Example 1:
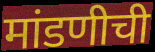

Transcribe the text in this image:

मांडणीची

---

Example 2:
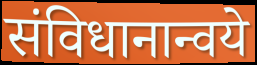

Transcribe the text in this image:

संविधानान्वये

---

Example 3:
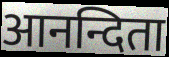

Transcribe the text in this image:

आनन्दिता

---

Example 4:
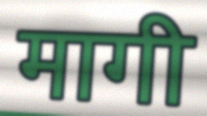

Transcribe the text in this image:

मागी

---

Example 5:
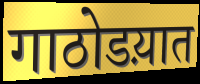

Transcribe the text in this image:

गाठोडय़ात